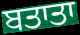
ਬਤਾਤਾ